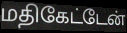
மதிகேட்டேன்